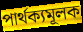
পাৰ্থক্যমূলক